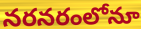
నరనరంలోనూ